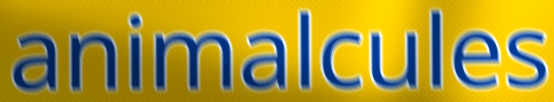
animalcules